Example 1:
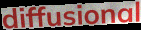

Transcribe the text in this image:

diffusional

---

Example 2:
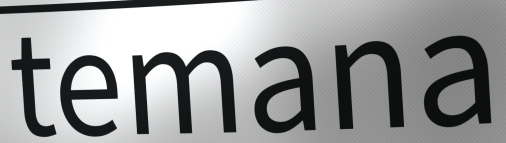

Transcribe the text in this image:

temana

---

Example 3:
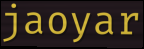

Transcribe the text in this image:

jaoyar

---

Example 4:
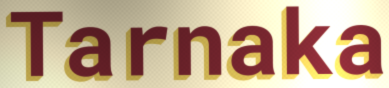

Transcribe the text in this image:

Tarnaka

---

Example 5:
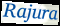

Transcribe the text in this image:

Rajura